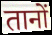
तानों